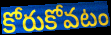
కోరుకోవటం